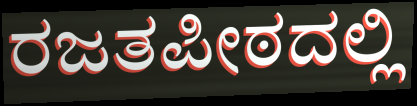
ರಜತಪೀಠದಲ್ಲಿ